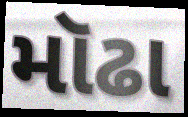
મૉઢા